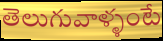
తెలుగువాళ్ళంటే